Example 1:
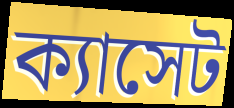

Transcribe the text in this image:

ক্যাসেট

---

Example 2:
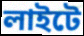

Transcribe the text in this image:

লাইটে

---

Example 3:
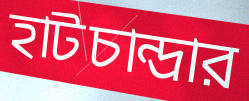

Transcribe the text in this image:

হাটচান্দ্রার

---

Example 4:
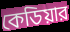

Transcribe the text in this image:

কেডিয়ার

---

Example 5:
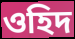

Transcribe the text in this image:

ওহিদ